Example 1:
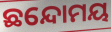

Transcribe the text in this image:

ଛନ୍ଦୋମୟ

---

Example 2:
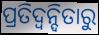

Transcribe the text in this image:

ପ୍ରତିଦ୍ୱନ୍ଦିତାରୁ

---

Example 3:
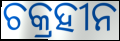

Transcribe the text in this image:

ଚକ୍ରହୀନ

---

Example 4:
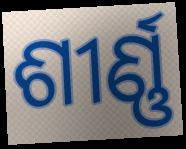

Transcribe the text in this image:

ଶୀର୍ଣ୍ଣ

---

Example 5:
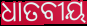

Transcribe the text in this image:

ଧାତବୀୟ